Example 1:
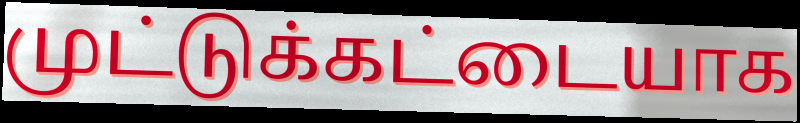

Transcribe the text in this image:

முட்டுக்கட்டையாக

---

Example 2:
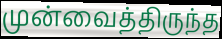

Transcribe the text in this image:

முன்வைத்திருந்த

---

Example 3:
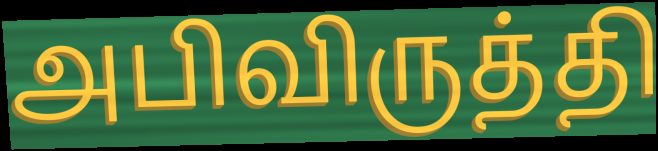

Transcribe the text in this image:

அபிவிருத்தி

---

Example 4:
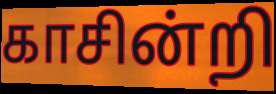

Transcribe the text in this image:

காசின்றி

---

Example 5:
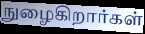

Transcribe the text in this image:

நுழைகிறார்கள்